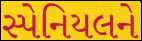
સ્પેનિયલને